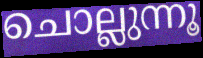
ചൊല്ലുന്നൂ